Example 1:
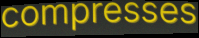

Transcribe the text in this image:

compresses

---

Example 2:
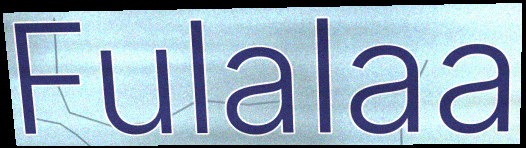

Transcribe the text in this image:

Fulalaa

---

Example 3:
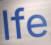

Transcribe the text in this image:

Ife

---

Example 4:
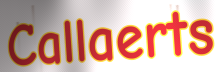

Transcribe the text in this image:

Callaerts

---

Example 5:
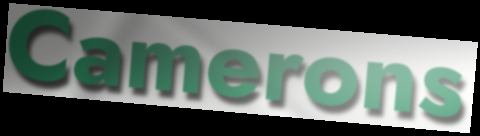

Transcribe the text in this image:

Camerons